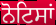
ਨੋਟਿਸਾਂ